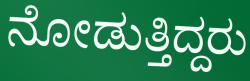
ನೋಡುತ್ತಿದ್ದರು